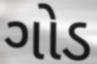
ગોડ